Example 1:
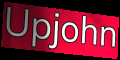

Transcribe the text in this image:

Upjohn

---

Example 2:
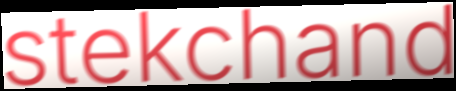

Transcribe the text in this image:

stekchand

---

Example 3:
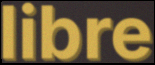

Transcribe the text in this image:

libre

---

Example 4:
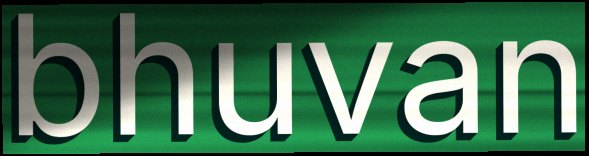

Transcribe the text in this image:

bhuvan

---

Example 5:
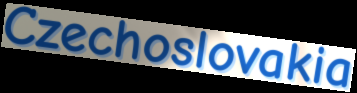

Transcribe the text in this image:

Czechoslovakia